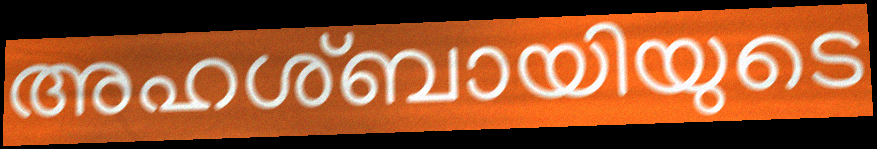
അഹശ്ബായിയുടെ